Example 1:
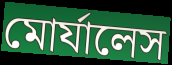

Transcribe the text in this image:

মোর্যালেস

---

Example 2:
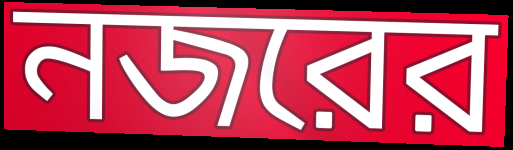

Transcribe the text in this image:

নজরের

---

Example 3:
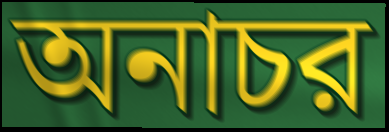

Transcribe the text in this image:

অনাচর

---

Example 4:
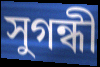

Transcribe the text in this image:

সুগন্ধী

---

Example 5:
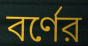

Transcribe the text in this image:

বর্ণের